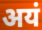
अयं